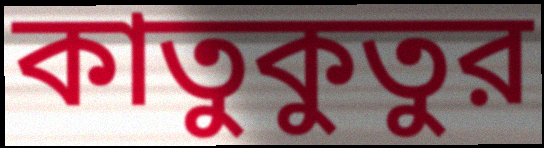
কাতুকুতুর